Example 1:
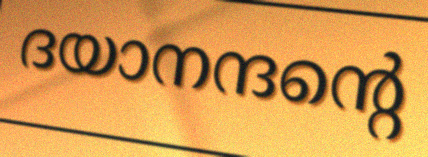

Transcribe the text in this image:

ദയാനന്ദന്റെ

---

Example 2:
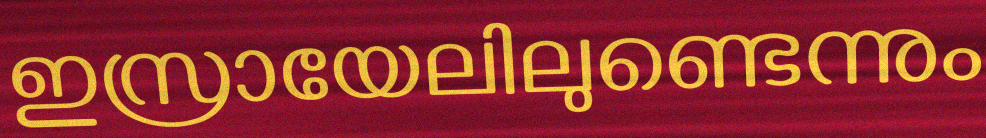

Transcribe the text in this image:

ഇസ്രായേലിലുണ്ടെന്നും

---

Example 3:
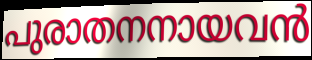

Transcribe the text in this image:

പുരാതനനായവൻ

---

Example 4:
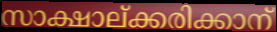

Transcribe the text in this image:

സാക്ഷാല്ക്കരിക്കാന്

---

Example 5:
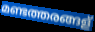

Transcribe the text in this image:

മണ്ടത്തരങ്ങള്